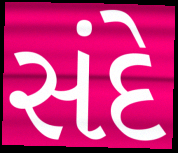
સંદે